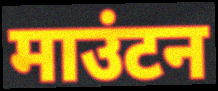
माउंटन